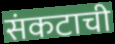
संकटाची